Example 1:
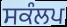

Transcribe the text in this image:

ਸਕੰਲਪ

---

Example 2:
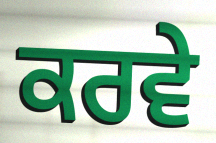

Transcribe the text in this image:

ਕਰਵੇ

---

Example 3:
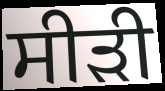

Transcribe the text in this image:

ਸੀੜੀ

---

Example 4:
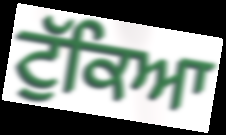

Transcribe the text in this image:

ਟੁੱਕਿਆ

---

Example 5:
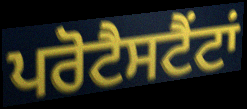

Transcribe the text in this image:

ਪਰੋਟੈਸਟੈਂਟਾਂ